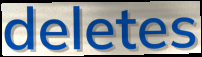
deletes